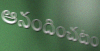
ఆనందించటం